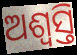
ଅଶ୍ୱସ୍ତି